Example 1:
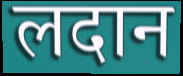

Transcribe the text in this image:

लदान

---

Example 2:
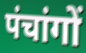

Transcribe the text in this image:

पंचांगों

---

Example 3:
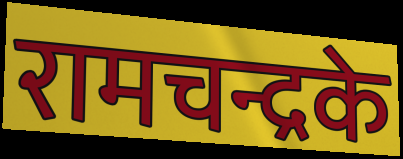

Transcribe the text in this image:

रामचन्द्रके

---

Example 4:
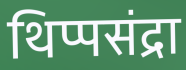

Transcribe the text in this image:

थिप्पसंद्रा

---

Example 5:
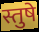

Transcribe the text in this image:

स्तुषे